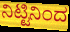
ನಿಟ್ಟಿನಿಂದ